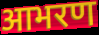
आभरण